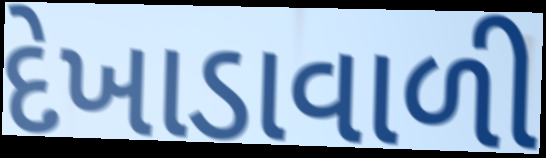
દેખાડાવાળી